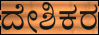
ದೇಶಿಕರ